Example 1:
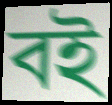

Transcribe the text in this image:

বই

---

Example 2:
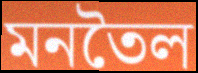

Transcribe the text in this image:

মনতৈল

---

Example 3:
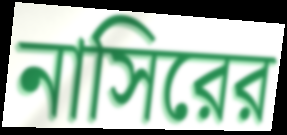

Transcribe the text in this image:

নাসিরের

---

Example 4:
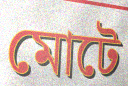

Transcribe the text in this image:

মোটে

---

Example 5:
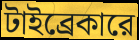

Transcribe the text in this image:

টাইব্রেকারে